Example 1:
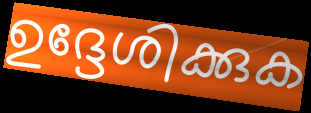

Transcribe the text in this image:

ഉദ്ദേശിക്കുക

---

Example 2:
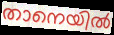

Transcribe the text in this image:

താനെയിൽ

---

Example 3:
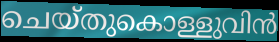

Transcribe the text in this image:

ചെയ്തുകൊള്ളുവിൻ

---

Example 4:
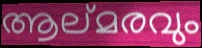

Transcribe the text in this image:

ആല്മരവും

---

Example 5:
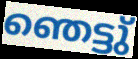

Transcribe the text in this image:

ഞെട്ടു്